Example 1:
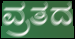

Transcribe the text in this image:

ವ್ರತದ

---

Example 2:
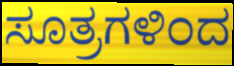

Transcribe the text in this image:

ಸೂತ್ರಗಳಿಂದ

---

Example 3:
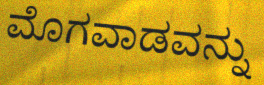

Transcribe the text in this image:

ಮೊಗವಾಡವನ್ನು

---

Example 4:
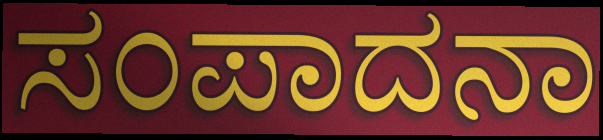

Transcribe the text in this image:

ಸಂಪಾದನಾ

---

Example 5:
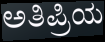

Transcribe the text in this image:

ಅತಿಪ್ರಿಯ